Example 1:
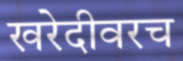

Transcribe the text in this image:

खरेदीवरच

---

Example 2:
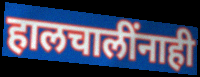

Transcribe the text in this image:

हालचालींनाही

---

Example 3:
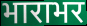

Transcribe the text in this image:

भाराभर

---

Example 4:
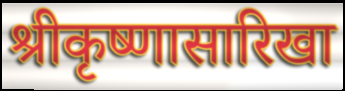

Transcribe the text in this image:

श्रीकृष्णासारिखा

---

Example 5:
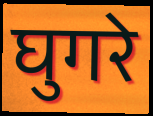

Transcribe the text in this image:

घुगरे